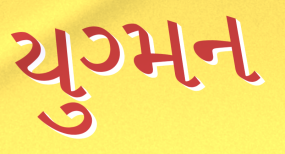
યુગ્મન